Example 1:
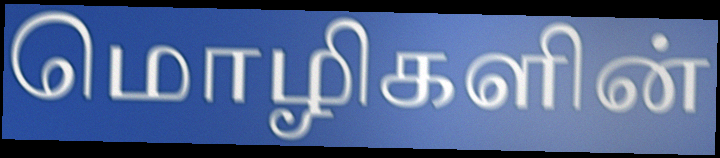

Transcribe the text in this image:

மொழிகளின்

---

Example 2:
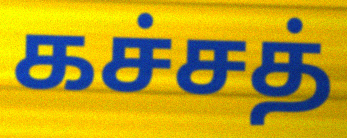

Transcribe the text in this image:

கச்சத்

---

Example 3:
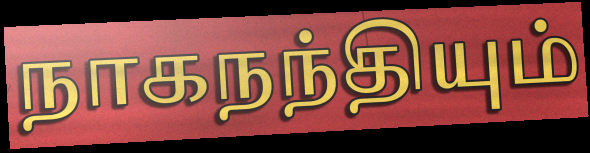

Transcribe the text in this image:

நாகநந்தியும்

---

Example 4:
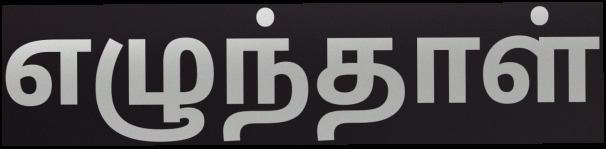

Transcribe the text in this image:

எழுந்தாள்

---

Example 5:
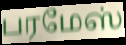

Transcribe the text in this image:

பரமேஸ்